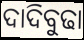
ଦାଦିବୁଢା